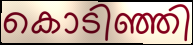
കൊടിഞ്ഞി